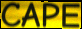
CAPE